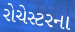
રોચેસ્ટરના